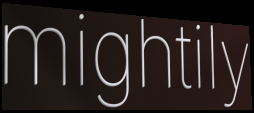
mightily